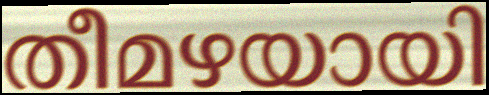
തീമഴയായി